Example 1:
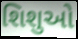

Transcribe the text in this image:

શિશુઓ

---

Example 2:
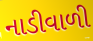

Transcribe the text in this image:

નાડીવાળી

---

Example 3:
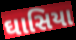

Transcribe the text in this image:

ઘાસિયા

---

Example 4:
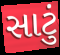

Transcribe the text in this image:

સાટું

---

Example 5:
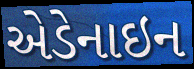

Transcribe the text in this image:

એડેનાઇન